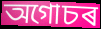
অগোচৰ